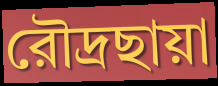
রৌদ্রছায়া